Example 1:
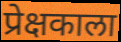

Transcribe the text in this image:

प्रेक्षकाला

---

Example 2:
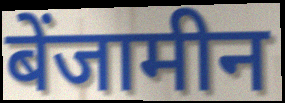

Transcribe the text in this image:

बेंजामीन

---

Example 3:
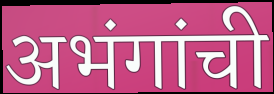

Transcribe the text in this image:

अभंगांची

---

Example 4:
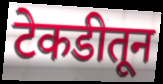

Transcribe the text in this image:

टेकडीतून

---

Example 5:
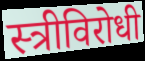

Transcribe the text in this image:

स्त्रीविरोधी